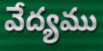
వేద్యము